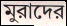
মুরাদের